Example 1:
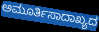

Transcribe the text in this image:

ಅಮೂರ್ತಿಸಾದಾಖ್ಯದ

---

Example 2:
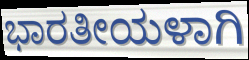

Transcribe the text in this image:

ಭಾರತೀಯಳಾಗಿ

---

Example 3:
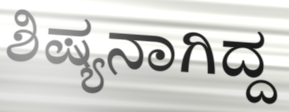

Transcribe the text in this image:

ಶಿಷ್ಯನಾಗಿದ್ದ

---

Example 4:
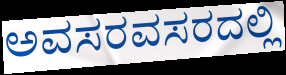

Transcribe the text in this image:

ಅವಸರವಸರದಲ್ಲಿ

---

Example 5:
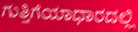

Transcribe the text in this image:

ಗುತ್ತಿಗೆಯಾಧಾರದಲ್ಲಿ